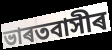
ভাৰতবাসীৰ